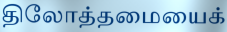
திலோத்தமையைக்